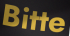
Bitte